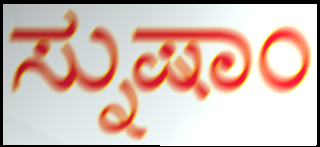
ಸ್ನುಷಾಂ